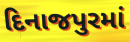
દિનાજપુરમાં